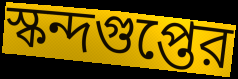
স্কন্দগুপ্তের